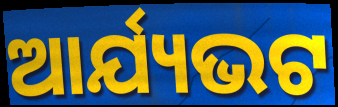
ଆର୍ଯ୍ୟଭଟ